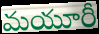
మయూరీ